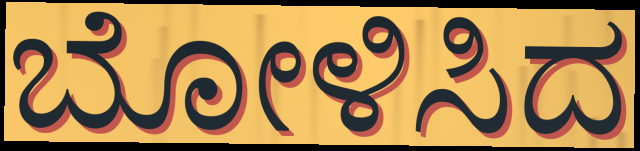
ಬೋಳಿಸಿದ